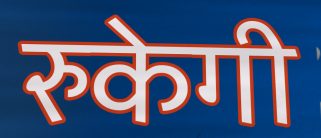
रुकेगी